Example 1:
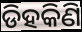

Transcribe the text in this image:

ଡିହକିଣି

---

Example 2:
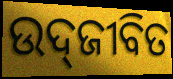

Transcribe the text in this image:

ଉଦ୍‍ଜୀବିତ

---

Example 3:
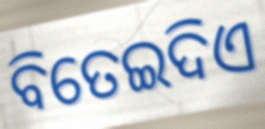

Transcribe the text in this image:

ବିତେଇଦିଏ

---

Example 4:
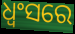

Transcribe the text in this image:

ଧ୍ଵଂସରେ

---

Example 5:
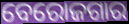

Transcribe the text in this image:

ବେରୋଜଗାର